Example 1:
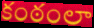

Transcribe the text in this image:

కంఠంలా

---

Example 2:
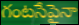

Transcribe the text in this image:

గంటసేపైనా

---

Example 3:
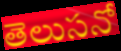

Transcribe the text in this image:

తెలుసనో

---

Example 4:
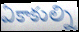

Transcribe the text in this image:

ఏకాకుల్ని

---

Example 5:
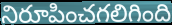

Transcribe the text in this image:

నిరూపించగలిగింది